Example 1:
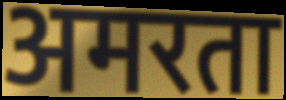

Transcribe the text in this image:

अमरता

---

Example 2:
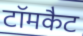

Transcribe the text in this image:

टॉमकैट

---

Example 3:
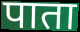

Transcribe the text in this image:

पाता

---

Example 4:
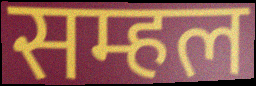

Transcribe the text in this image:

सम्हल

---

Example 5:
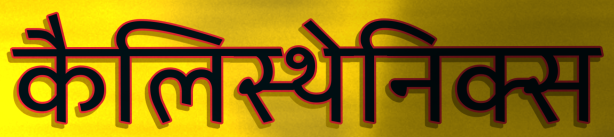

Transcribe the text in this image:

कैलिस्थेनिक्स